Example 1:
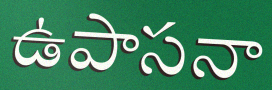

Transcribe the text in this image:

ఉపాసనా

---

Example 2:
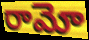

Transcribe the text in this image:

రామో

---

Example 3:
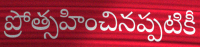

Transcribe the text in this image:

ప్రోత్సహించినప్పటికీ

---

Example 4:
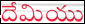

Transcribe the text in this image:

దేమియు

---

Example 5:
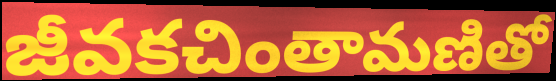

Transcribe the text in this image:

జీవకచింతామణితో